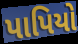
પાપિયો